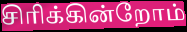
சிரிக்கின்றோம்